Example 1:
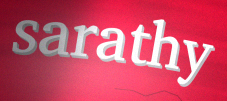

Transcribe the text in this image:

sarathy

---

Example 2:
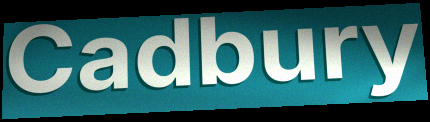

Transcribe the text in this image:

Cadbury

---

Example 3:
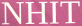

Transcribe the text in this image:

NHIT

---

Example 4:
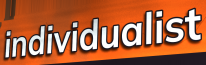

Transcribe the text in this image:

individualist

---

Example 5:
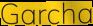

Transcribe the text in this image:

Garcha